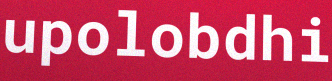
upolobdhi